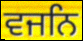
ਵਜਨਿ